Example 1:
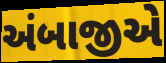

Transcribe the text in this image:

અંબાજીએ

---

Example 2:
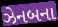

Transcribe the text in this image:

ઝેનબના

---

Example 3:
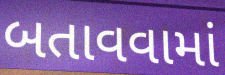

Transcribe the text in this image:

બતાવવામાં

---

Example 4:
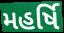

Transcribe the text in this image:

મહર્ષિ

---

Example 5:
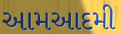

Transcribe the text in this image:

આમઆદમી